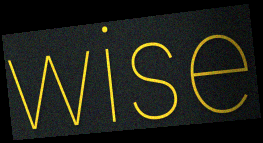
wise